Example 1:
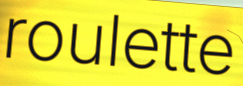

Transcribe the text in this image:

roulette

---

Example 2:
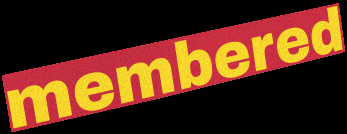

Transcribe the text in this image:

membered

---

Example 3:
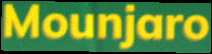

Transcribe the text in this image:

Mounjaro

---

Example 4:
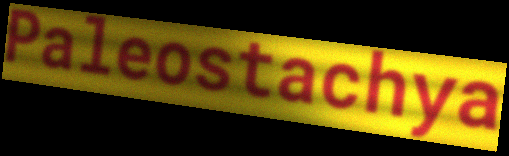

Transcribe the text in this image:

Paleostachya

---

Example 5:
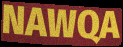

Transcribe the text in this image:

NAWQA